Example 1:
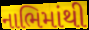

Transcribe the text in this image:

નાભિમાંથી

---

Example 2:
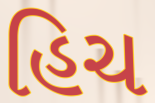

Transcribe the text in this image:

હિચ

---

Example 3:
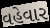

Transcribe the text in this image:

વહેવાર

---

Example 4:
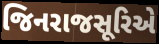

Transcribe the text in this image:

જિનરાજસૂરિએ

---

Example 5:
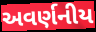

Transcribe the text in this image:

અવર્ણનીય